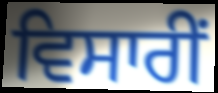
ਵਿਸਾਰੀਂ